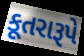
કૂતરારૂપે